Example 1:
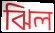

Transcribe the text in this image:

ঝিল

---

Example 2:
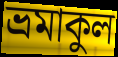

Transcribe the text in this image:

ভ্রমাকুল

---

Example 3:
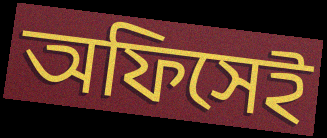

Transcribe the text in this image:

অফিসেই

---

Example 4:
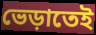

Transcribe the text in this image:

ভেড়াতেই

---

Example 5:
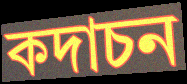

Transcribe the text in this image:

কদাচন